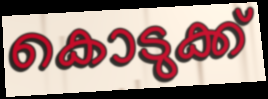
കൊടുക്ക്